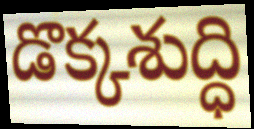
డొక్కశుద్ధి